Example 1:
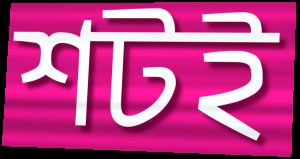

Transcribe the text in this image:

শটই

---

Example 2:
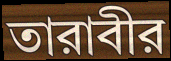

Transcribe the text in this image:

তারাবীর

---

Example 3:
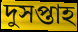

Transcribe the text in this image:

দুসপ্তাহ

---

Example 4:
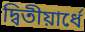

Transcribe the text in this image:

দ্বিতীয়ার্ধে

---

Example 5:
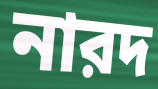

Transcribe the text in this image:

নারদ